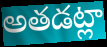
అతడట్లా